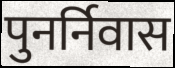
पुनर्निवास